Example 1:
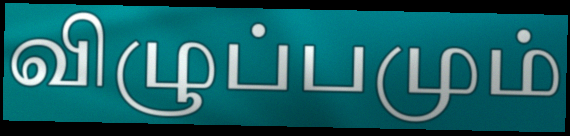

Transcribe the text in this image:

விழுப்பமும்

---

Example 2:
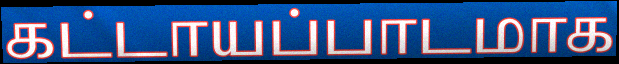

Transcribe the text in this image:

கட்டாயப்பாடமாக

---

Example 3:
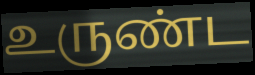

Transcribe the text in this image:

உருண்ட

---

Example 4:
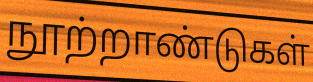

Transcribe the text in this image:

நூற்றாண்டுகள்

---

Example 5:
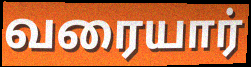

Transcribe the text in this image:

வரையார்